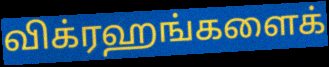
விக்ரஹங்களைக்